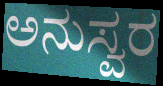
ಅನುಸ್ವರ